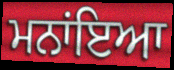
ਮਨਾਂਇਆ